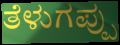
ತೆಳುಗಪ್ಪು